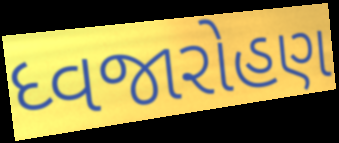
ધ્વજારોહણ